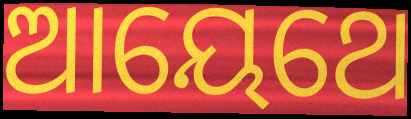
ଆୟେଥେ